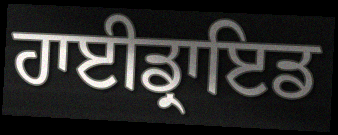
ਹਾਈਡ੍ਰਾਇਡ